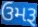
ઉમરૂ